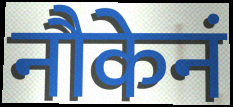
नौकेनं